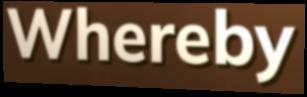
Whereby